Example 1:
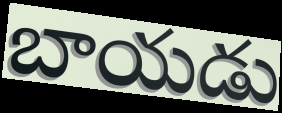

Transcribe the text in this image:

బాయడు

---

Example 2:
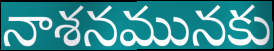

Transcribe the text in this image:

నాశనమునకు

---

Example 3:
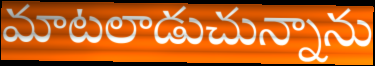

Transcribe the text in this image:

మాటలాడుచున్నాను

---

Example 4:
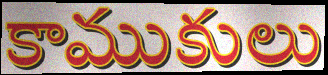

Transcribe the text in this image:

కాముకులు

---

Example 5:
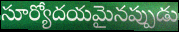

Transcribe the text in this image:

సూర్యోదయమైనప్పుడు